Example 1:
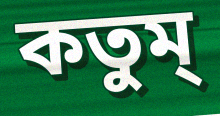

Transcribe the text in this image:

কতুম্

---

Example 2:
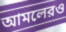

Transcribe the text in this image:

আমলেরও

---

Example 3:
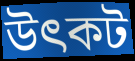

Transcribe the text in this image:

উৎকট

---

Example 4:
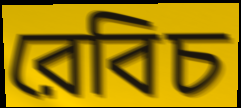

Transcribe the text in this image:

রেবিচ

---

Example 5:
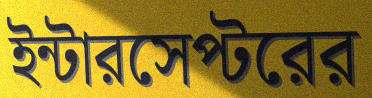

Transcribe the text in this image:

ইন্টারসেপ্টরের